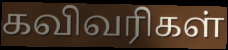
கவிவரிகள்